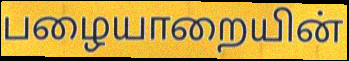
பழையாறையின்